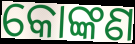
କୋଙ୍କଣ